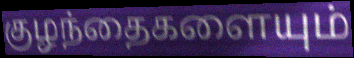
குழந்தைகளையும்